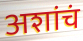
अशांचं